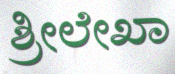
ಶ್ರೀಲೇಖಾ